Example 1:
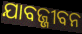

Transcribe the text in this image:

ଯାବଜ୍ଜୀବନ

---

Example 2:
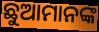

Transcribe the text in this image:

ଛୁଆମାନଙ୍କ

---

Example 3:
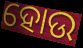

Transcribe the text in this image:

ହୋଉ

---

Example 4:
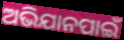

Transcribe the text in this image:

ଅଭିଯାନପାଇଁ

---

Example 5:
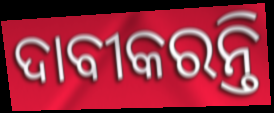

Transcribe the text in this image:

ଦାବୀକରନ୍ତି